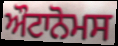
ਔਟਾਨੋਮਸ